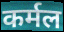
कर्मल